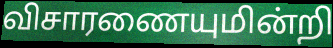
விசாரணையுமின்றி